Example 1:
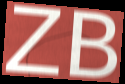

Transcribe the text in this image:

ZB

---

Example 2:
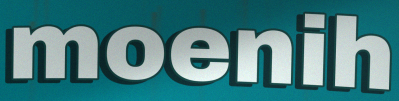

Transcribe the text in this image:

moenih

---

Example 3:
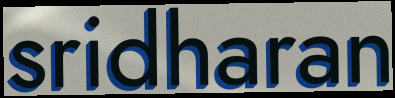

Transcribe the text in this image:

sridharan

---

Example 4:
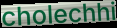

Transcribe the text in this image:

cholechhi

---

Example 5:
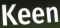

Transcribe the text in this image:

Keen